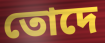
তোদে